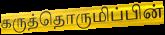
கருத்தொருமிப்பின்